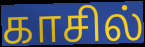
காசில்